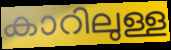
കാറിലുള്ള